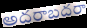
అదరాబదరా